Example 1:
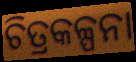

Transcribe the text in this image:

ଚିତ୍ରକଳ୍ପନା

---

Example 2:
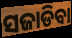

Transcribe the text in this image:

ସଜାଡିବା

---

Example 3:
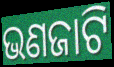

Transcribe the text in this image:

ଭଣଜାଟି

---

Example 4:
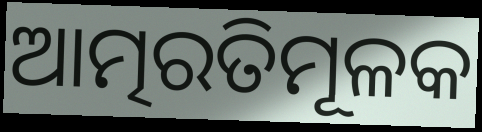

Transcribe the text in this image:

ଆତ୍ମରତିମୂଳକ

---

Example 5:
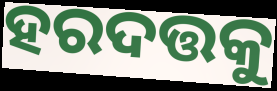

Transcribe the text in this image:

ହରଦତ୍ତକୁ